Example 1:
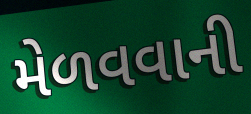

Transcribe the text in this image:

મેળવવાની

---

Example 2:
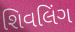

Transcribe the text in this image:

શિવલિંગ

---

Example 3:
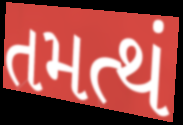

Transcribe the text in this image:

તમત્થં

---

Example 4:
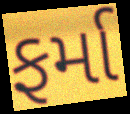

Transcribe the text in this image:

ફર્મા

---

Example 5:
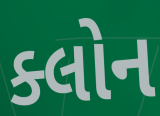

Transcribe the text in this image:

ક્લોન